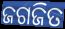
ଜଗଜିତ